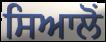
ਸਿਆਲੋਂ